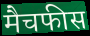
मैचफीस